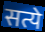
सत्ये